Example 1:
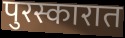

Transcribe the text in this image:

पुरस्कारात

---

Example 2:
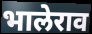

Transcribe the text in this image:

भालेराव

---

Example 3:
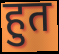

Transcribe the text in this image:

हुत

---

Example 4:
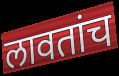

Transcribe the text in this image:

लावतांच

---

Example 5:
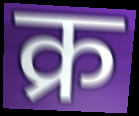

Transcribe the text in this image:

क्र